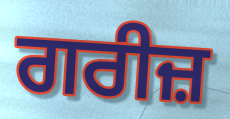
ਗਰੀਜ਼